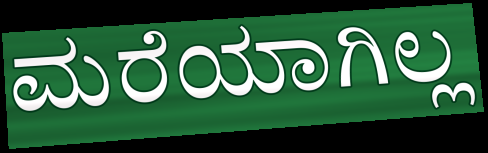
ಮರೆಯಾಗಿಲ್ಲ